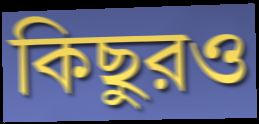
কিছুরও